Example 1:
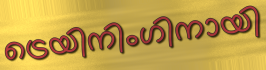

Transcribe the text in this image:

ട്രെയിനിംഗിനായി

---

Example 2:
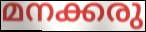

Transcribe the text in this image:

മനക്കരു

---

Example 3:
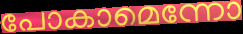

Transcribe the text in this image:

പോകാമെന്നോ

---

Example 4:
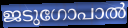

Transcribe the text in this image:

ജടുഗോപാൽ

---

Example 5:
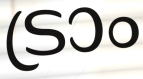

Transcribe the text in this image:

ട്രാം